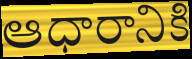
ఆధారానికి